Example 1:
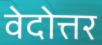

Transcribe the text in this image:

वेदोत्तर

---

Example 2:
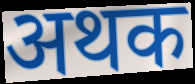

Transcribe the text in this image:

अथक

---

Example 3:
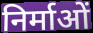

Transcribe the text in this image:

निर्माओं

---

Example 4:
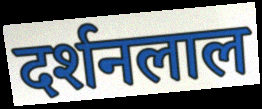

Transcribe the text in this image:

दर्शनलाल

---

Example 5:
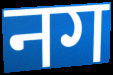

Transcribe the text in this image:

नग